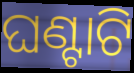
ଘଣ୍ଟାଟି